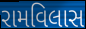
રામવિલાસ